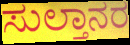
ಸುಲ್ತಾನರ